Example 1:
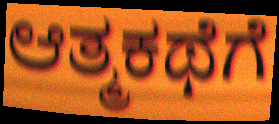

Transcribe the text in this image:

ಆತ್ಮಕಥೆಗೆ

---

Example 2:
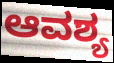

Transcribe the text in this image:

ಆವಶ್ಯ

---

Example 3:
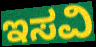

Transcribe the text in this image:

ಇಸವಿ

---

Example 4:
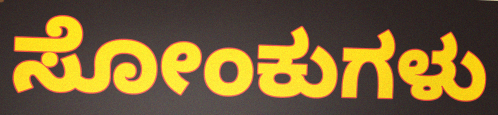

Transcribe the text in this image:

ಸೋಂಕುಗಳು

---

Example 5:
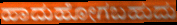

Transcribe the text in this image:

ಹಾದುಹೋಗಬಹುದು